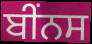
ਬੀਂਨਸ